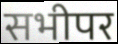
सभीपर